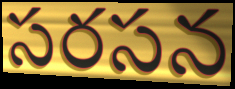
సరసన